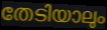
തേടിയാലും